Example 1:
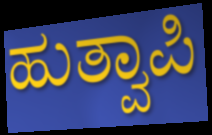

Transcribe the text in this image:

ಹುತ್ವಾಪಿ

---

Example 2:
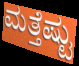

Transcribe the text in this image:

ಮತ್ತೆಷ್ಟು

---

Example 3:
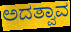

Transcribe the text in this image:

ಅದತ್ವಾವ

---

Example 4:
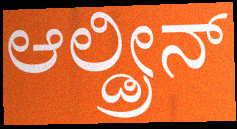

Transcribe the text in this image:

ಆಲ್ಡ್ರೀನ್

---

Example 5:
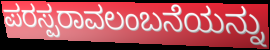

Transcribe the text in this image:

ಪರಸ್ಪರಾವಲಂಬನೆಯನ್ನು